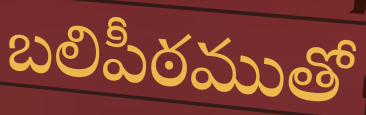
బలిపీఠముతో